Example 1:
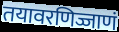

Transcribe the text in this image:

तयावरणिज्जाणं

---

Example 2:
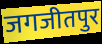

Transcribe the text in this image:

जगजीतपुर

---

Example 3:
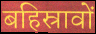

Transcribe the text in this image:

बहिस्रावों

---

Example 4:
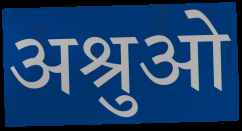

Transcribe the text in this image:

अश्रुओ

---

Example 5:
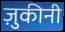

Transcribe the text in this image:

ज़ुकीनी